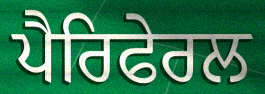
ਪੈਰਿਫੇਰਲ